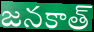
జనకాత్